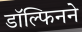
डॉल्फिनने